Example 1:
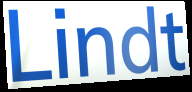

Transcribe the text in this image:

Lindt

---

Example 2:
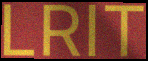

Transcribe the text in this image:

LRIT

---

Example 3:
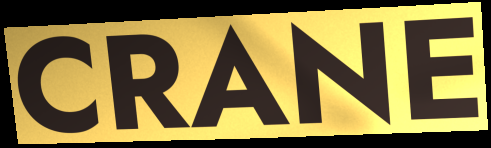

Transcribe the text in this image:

CRANE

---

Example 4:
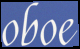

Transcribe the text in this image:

oboe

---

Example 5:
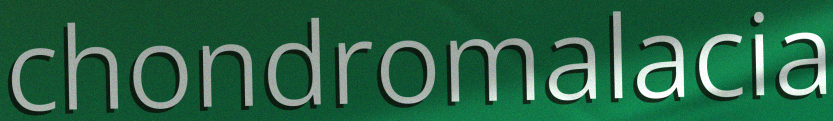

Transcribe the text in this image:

chondromalacia